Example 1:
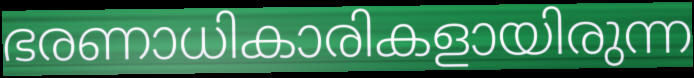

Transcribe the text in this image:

ഭരണാധികാരികളായിരുന്ന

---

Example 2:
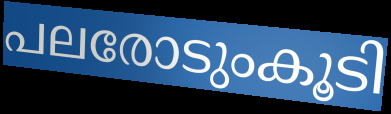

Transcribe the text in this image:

പലരോടുംകൂടി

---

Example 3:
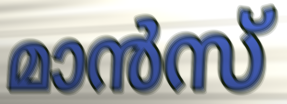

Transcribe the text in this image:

മാൻസ്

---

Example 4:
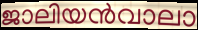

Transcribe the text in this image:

ജാലിയൻവാലാ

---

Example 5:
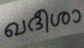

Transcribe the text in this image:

ഖദീശാ